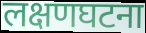
लक्षणघटना